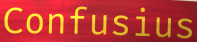
Confusius